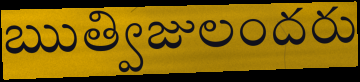
ఋత్విజులందరు